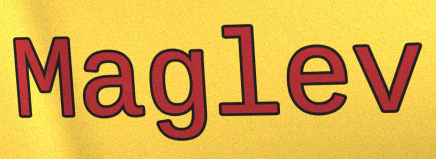
Maglev